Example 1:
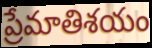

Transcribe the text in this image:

ప్రేమాతిశయం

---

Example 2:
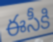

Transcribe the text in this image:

ఈసీకి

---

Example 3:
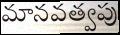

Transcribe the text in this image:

మానవత్వపు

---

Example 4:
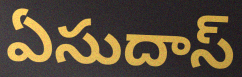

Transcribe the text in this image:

ఏసుదాస్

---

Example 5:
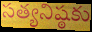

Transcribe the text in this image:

సత్యనిష్ఠకు